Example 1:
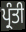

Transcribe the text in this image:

ਪ੍ਰੰਤੀ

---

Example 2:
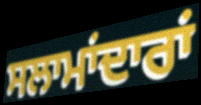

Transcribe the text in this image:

ਸਲਾਮਾਂਦਾਰਾਂ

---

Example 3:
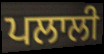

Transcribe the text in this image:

ਪਲਾਲੀ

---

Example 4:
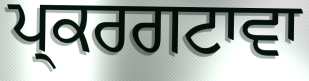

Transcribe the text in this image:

ਪ੍ਕਰਗਟਾਵਾ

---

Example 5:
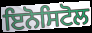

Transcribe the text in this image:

ਇਨੋਸਿਟੋਲ